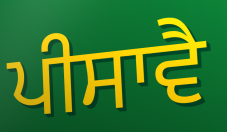
ਪੀਸਾਵੈ